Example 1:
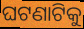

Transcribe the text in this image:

ଘଟଣାଟିକୁ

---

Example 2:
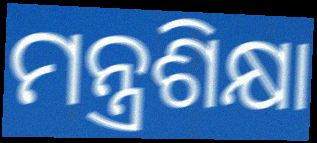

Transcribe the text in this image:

ମନ୍ତ୍ରଶିକ୍ଷା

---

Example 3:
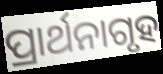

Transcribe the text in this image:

ପ୍ରାର୍ଥନାଗୃହ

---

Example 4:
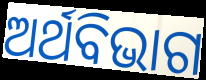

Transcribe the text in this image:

ଅର୍ଥବିଭାଗ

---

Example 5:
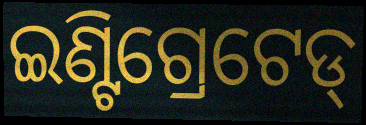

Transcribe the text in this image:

ଇଣ୍ଟିଗ୍ରେଟେଡ୍